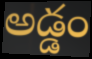
అడ్డం